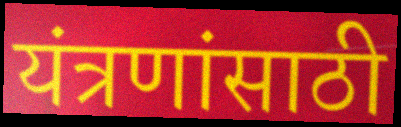
यंत्रणांसाठी